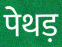
पेथड़